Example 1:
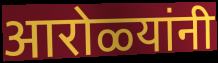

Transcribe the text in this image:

आरोळ्यांनी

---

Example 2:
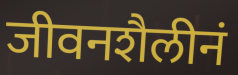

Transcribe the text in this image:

जीवनशैलीनं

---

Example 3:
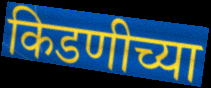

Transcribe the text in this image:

किडणीच्या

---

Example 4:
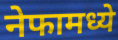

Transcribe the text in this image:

नेफामध्ये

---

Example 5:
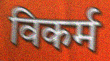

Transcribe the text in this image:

विकर्म